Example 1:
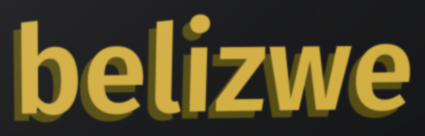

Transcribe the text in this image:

belizwe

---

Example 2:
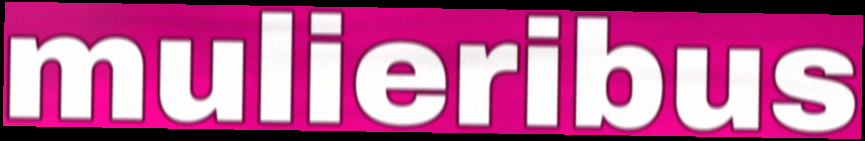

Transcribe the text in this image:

mulieribus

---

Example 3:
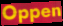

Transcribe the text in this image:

Oppen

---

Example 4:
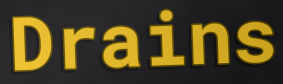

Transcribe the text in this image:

Drains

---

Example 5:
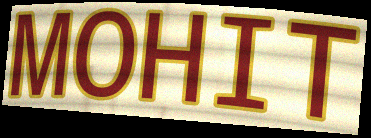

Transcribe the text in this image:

MOHIT